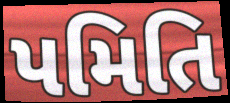
પમિતિ